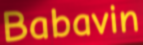
Babavin